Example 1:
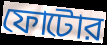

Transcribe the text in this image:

ফোটোর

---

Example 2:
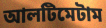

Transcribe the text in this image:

আলটিমেটাম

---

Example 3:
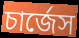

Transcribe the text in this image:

চার্জেস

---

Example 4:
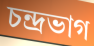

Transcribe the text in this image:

চন্দ্রভাগ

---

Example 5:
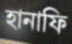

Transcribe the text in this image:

হানাফি